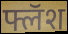
फ्लॅश